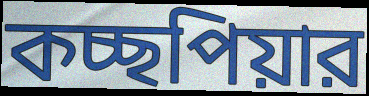
কচ্ছপিয়ার